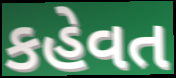
કહેવત